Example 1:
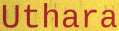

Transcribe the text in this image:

Uthara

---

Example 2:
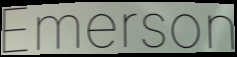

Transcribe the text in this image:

Emerson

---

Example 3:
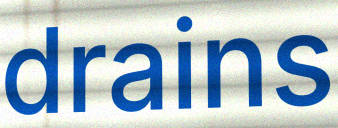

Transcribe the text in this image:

drains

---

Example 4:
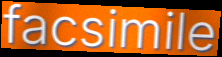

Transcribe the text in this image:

facsimile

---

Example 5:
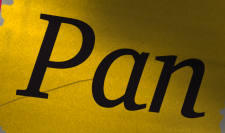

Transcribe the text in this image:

Pan